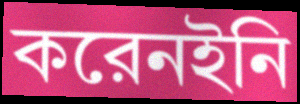
করেনইনি